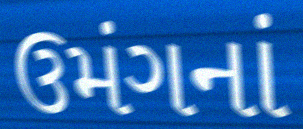
ઉમંગનાં